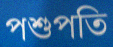
পশুপতি